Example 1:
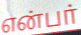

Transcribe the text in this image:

என்பர்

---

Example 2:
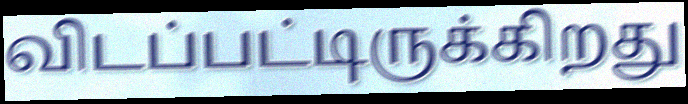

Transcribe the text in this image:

விடப்பட்டிருக்கிறது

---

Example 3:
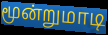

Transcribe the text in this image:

மூன்றுமாடி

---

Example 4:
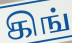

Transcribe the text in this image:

கிங்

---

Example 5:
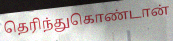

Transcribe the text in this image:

தெரிந்துகொண்டான்